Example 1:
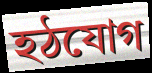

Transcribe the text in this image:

হঠযোগ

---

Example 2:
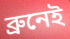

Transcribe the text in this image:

ব্রুনেই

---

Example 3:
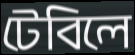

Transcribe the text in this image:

টেবিলে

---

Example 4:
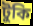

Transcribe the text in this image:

টুকি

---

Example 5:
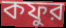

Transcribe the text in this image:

কফুর